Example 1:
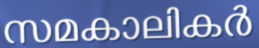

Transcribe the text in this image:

സമകാലികർ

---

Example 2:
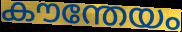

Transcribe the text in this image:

കൗന്തേയം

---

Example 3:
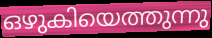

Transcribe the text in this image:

ഒഴുകിയെത്തുന്നു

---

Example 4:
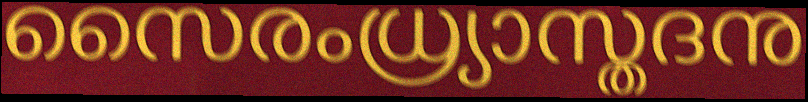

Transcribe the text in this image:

സൈരംധ്ര്യാസ്തദനു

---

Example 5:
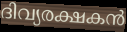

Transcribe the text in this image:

ദിവ്യരക്ഷകൻ